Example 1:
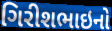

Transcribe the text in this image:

ગિરીશભાઇનો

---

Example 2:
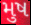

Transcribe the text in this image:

મુષ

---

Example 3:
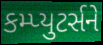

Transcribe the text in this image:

કમ્પ્યુટર્સને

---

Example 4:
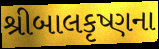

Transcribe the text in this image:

શ્રીબાલકૃષ્ણના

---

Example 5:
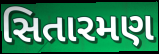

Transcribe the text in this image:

સિતારમણ